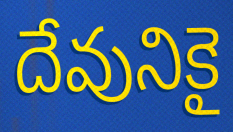
దేవునికై